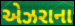
એઝરાના